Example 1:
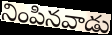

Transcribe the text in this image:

నింపినవాడు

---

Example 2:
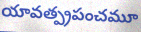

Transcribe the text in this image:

యావత్ప్రపంచమూ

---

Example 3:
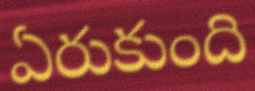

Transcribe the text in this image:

ఏరుకుంది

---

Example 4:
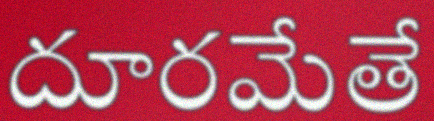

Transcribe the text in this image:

దూరమేతే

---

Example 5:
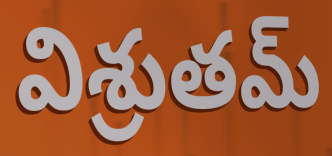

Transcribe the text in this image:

విశ్రుతమ్